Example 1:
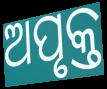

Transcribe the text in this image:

ଅପୃକ୍ତ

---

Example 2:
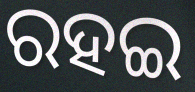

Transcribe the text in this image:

ରହଇ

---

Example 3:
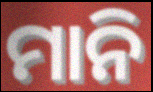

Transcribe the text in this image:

ମାନି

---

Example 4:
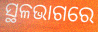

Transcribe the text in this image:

ସ୍ଥଳଭାଗରେ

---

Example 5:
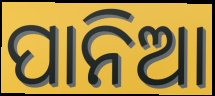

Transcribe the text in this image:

ପାନିଆ